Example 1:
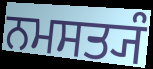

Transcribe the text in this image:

ਨਮਸਤ੍ਯੰ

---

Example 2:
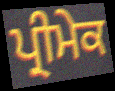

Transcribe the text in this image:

ਪ੍ਰੀਮੇਕ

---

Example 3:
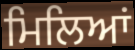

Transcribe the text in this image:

ਮਿਲਿਆਂ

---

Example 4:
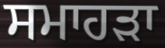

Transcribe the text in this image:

ਸਮਾਹੜਾ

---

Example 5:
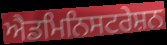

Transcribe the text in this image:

ਐਡਮਿਨਿਸਟਰੇਸ਼ਨ